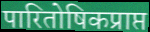
पारितोषिकप्राप्त